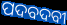
ପଦବଦବୀ